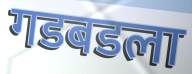
गडबडला